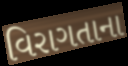
વિરાગતાના